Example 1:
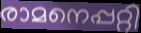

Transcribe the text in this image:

രാമനെപ്പറ്റി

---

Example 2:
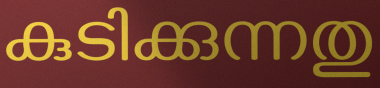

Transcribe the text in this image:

കുടിക്കുന്നതു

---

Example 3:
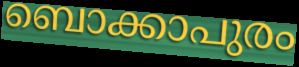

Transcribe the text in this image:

ബൊക്കാപുരം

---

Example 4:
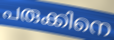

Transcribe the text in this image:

പരുക്കിനെ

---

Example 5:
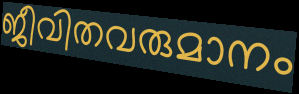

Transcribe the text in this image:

ജീവിതവരുമാനം